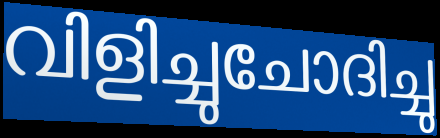
വിളിച്ചുചോദിച്ചു